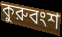
কুরুবংশ